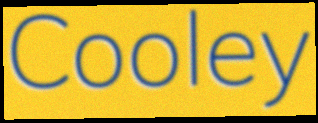
Cooley